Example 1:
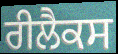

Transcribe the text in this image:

ਰੀਲੈਕਸ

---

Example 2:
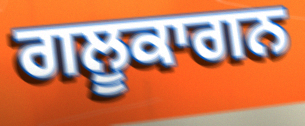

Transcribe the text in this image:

ਗਲੂਕਾਗਨ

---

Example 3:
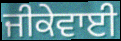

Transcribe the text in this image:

ਜੀਕੇਵਾਈ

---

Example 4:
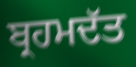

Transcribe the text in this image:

ਬ੍ਰਹਮਦੱਤ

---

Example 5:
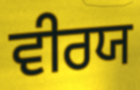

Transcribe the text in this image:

ਵੀਰਯ